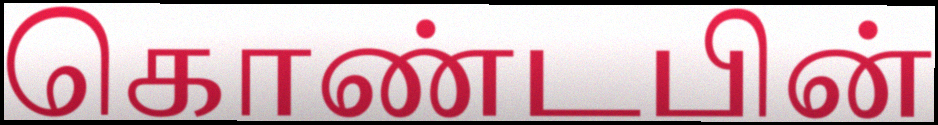
கொண்டபின்